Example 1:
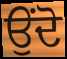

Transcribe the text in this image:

ਉਂਦੋ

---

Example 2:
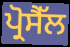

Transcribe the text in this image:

ਪ੍ਰੋਸੈੱਲ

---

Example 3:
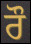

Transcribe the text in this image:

ਰੌ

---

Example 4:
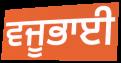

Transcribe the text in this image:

ਵਜੂਭਾਈ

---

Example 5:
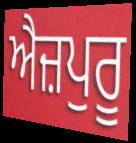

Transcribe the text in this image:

ਐਜ਼ਪੁਰੂ